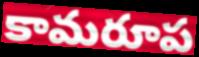
కామరూప